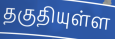
தகுதியுள்ள